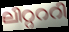
ലിറ്റററി